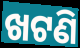
ଖଟଣି